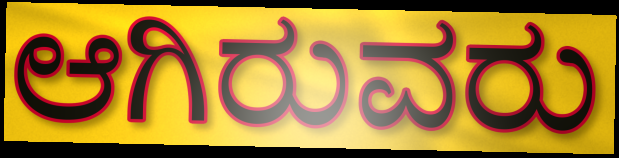
ಆಗಿರುವರು